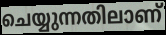
ചെയ്യുന്നതിലാണ്